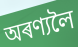
অৰণ্যলৈ